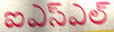
ఐఎస్ఎల్